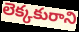
లెక్కకురాని